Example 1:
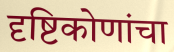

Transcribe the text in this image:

दृष्टिकोणांचा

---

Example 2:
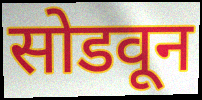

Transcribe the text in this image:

सोडवून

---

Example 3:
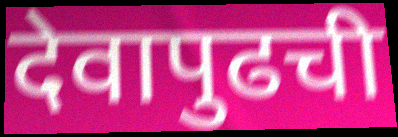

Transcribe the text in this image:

देवापुढची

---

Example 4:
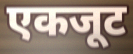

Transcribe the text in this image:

एकजूट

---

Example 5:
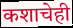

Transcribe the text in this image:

कशाचेही